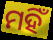
ମହିଁ